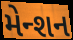
મેન્શન